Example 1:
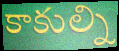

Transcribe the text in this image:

కాకుల్ని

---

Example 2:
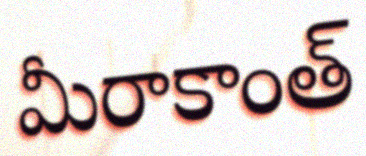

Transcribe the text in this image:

మీరాకాంత్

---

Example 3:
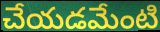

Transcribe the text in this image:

చేయడమేంటి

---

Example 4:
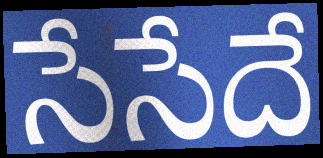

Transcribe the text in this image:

సేసేదే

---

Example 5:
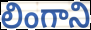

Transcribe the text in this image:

లింగాని